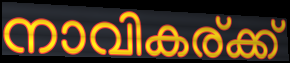
നാവികര്ക്ക്